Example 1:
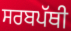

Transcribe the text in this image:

ਸਰਬਪੱਥੀ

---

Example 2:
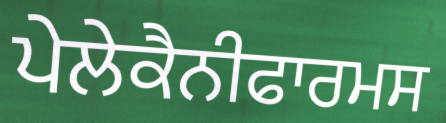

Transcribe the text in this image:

ਪੇਲੇਕੈਨੀਫਾਰਮਸ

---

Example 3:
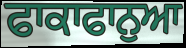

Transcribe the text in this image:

ਫਾਕਾਫਾਨੁਆ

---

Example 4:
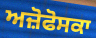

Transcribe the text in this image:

ਅਜ਼ੋਫੋਸਕਾ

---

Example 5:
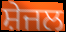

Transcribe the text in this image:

ਸ਼ੇਜਲ